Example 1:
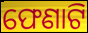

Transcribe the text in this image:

ଫେଣାଟି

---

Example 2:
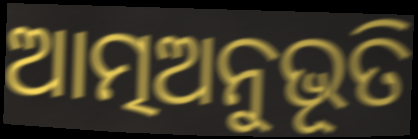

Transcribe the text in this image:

ଆତ୍ମଅନୁଭୂତି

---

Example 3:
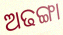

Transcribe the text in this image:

ଅଢଙ୍ଗା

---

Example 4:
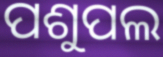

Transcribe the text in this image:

ପଶୁପଲ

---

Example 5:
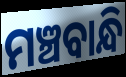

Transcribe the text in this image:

ମଞ୍ଚବାନ୍ଧି